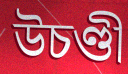
উচণ্ডী